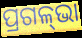
ପ୍ରଗଳ୍‌ଭା